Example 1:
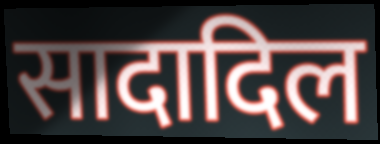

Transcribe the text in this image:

सादादिल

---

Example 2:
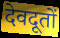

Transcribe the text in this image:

देवदूतों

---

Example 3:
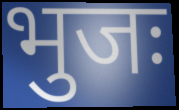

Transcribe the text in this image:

भुजः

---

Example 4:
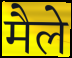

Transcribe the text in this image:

मैले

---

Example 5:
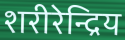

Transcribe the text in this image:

शरीरेन्द्रिय